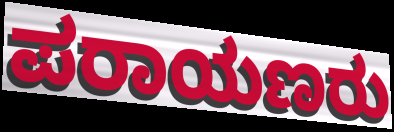
ಪರಾಯಣರು